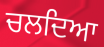
ਚਲਦਿਆ